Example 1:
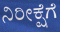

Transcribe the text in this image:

ನಿರೀಕ್ಷೆಗೆ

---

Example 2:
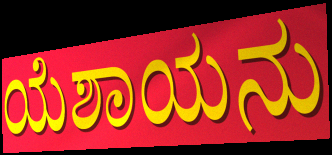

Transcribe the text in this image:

ಯೆಶಾಯನು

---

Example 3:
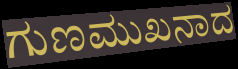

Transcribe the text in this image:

ಗುಣಮುಖನಾದ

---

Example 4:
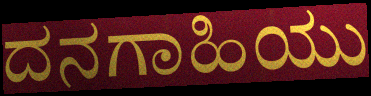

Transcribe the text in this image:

ದನಗಾಹಿಯು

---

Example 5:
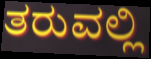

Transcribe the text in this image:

ತರುವಲ್ಲಿ